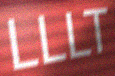
LLLT